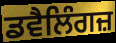
ਡਵੈਲਿੰਗਜ਼